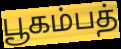
பூகம்பத்